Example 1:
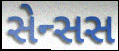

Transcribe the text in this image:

સેન્સસ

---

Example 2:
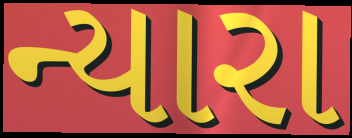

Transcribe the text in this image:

ન્યારા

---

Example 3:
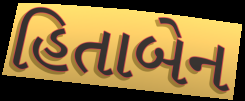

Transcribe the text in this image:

હિતાબેન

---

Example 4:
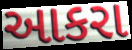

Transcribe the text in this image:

આકરા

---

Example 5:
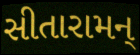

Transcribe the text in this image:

સીતારામન્